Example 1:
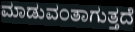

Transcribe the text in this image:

ಮಾಡುವಂತಾಗುತ್ತದೆ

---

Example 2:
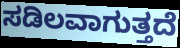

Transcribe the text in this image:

ಸಡಿಲವಾಗುತ್ತದೆ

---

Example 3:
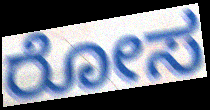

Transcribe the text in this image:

ರೋಸ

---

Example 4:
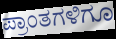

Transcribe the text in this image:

ಪ್ರಾಂತಗಳಿಗೂ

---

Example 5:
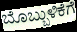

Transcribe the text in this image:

ಬೊಬ್ಬುಳಿಕೆಗೆ